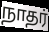
நாதர்